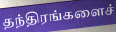
தந்திரங்களைச்